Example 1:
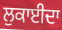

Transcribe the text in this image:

ਲੁਕਾਈਦਾ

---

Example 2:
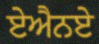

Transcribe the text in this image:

ਏਐਨਏ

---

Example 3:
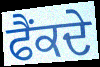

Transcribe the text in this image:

ਫੈਂਕਦੇ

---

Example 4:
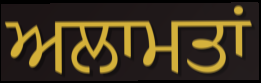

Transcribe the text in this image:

ਅਲਾਮਤਾਂ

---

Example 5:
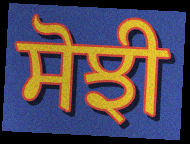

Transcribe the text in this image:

ਸੋਝੀ